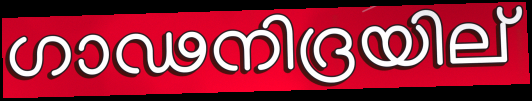
ഗാഢനിദ്രയില്